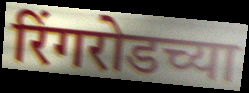
रिंगरोडच्या